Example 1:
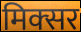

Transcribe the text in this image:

मिक्‍सर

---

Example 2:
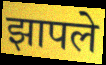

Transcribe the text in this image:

झापले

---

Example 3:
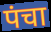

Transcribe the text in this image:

पंचा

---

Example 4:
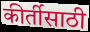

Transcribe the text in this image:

कीर्तीसाठी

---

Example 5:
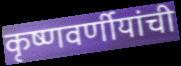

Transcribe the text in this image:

कृष्णवर्णीयांची